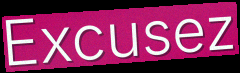
Excusez